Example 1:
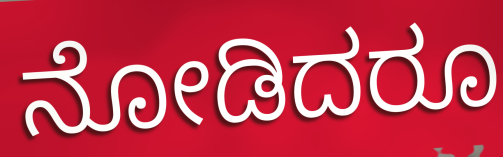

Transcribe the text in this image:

ನೋಡಿದರೂ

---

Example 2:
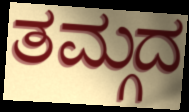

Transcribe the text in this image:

ತಮ್ಗದ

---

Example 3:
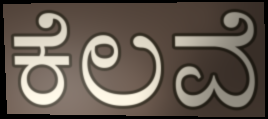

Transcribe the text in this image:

ಕೆಲವೆ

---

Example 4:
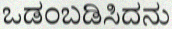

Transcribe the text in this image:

ಒಡಂಬಡಿಸಿದನು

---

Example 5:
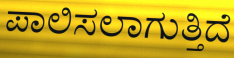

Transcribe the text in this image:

ಪಾಲಿಸಲಾಗುತ್ತಿದೆ